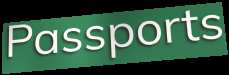
Passports